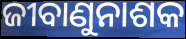
ଜୀବାଣୁନାଶକ